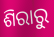
ଶିରାରୁ